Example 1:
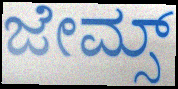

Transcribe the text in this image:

ಜೇಮ್ಸ್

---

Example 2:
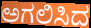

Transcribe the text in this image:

ಅಗಲಿಸಿದ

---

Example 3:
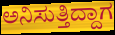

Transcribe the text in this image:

ಅನಿಸುತ್ತಿದ್ದಾಗ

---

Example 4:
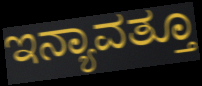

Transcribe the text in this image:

ಇನ್ಯಾವತ್ತೂ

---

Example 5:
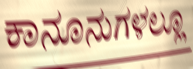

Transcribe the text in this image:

ಕಾನೂನುಗಳಲ್ಲೂ